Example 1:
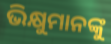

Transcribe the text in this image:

ଭିକ୍ଷୁମାନଙ୍କୁ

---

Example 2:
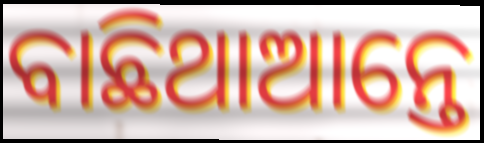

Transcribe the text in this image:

ବାଛିଥାଆନ୍ତେ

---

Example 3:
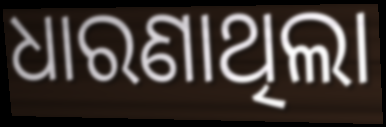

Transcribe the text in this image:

ଧାରଣାଥିଲା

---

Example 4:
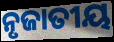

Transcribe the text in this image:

ନୃଜାତୀୟ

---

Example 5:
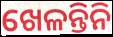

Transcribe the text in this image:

ଖେଳନ୍ତିନି